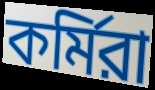
কর্মিরা